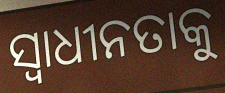
ସ୍ଵାଧୀନତାକୁ